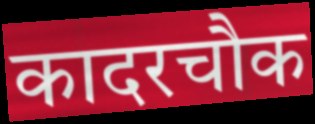
कादरचौक